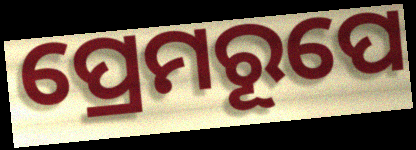
ପ୍ରେମରୂପେ